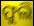
ଫୁଲି